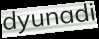
dyunadi